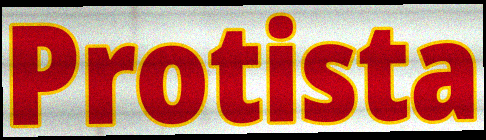
Protista